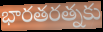
భారతరత్నకు